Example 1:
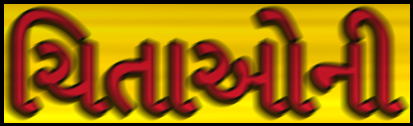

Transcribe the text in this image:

ચિતાઓની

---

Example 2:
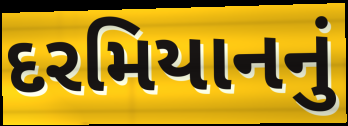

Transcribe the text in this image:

દરમિયાનનું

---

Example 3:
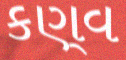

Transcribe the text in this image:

કણ્‌વ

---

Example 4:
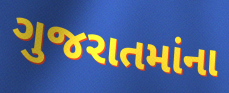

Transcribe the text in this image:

ગુજરાતમાંના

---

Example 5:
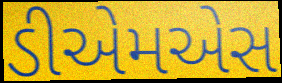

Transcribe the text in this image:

ડીએમએસ